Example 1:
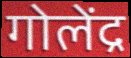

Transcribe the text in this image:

गोलेंद्र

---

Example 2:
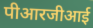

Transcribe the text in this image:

पीआरजीआई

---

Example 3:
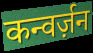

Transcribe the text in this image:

कन्वर्ज़न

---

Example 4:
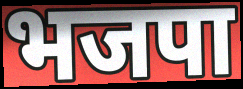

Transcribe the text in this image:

भजपा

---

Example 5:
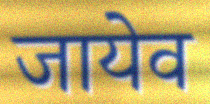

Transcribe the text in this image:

जायेव